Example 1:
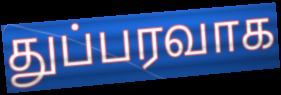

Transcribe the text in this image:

துப்பரவாக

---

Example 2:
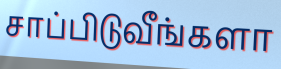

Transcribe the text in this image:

சாப்பிடுவீங்களா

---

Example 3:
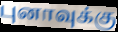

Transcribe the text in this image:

புனாவுக்கு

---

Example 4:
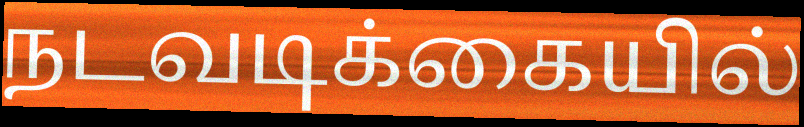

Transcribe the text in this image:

நடவடிக்கையில்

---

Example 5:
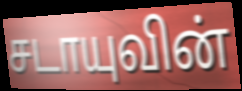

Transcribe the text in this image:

சடாயுவின்